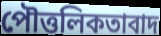
পৌত্তলিকতাবাদ